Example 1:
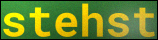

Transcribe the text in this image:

stehst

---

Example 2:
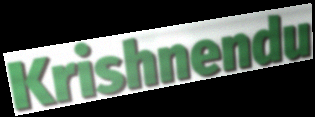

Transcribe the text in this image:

Krishnendu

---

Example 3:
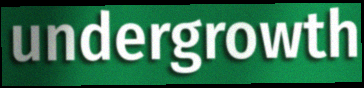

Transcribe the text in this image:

undergrowth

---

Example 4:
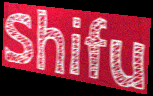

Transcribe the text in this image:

Shifu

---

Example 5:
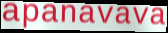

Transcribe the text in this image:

apanavava